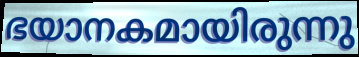
ഭയാനകമായിരുന്നു